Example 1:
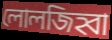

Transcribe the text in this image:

লোলজিহ্বা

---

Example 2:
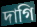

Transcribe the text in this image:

দাগি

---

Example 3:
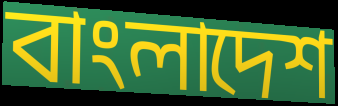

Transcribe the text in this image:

বাংলাদেশ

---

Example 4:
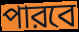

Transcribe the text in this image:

পারবে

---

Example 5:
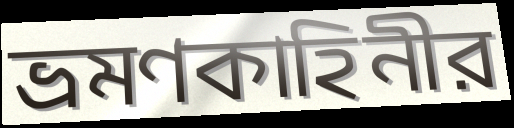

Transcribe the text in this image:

ভ্রমণকাহিনীর